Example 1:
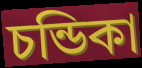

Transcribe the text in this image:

চন্ডিকা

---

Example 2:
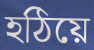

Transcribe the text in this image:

হঠিয়ে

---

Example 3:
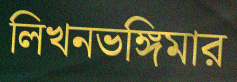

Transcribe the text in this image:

লিখনভঙ্গিমার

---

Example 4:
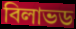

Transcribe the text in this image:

বিলাভড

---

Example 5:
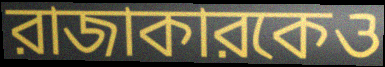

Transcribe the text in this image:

রাজাকারকেও